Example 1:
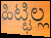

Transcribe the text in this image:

ಹಿಟ್ಟಿಲ್ಲ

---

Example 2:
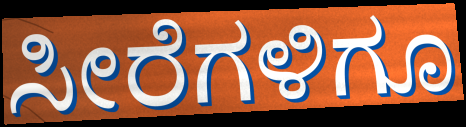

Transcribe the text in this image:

ಸೀರೆಗಳಿಗೂ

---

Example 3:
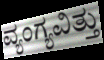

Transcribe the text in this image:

ವ್ಯಂಗ್ಯವಿತ್ತು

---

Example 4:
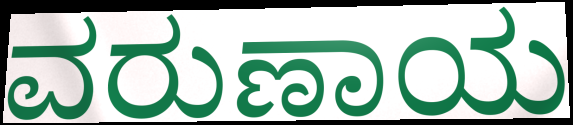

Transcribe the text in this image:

ವರುಣಾಯ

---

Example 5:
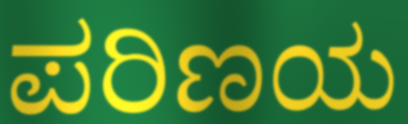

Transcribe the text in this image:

ಪರಿಣಯ